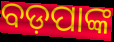
ବଡ଼ପାଙ୍କ